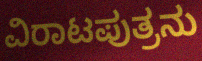
ವಿರಾಟಪುತ್ರನು